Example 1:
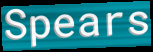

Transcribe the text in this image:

Spears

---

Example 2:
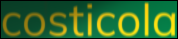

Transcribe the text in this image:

costicola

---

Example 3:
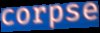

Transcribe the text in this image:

corpse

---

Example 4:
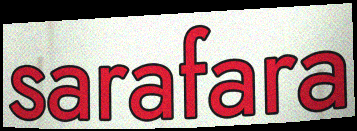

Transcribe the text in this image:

sarafara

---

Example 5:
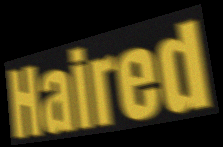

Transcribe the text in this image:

Haired